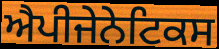
ਐਪੀਜੇਨੇਟਿਕਸ